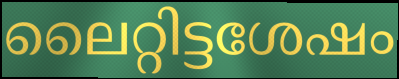
ലൈറ്റിട്ടശേഷം